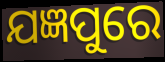
ଯଜ୍ଞପୁରେ